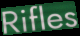
Rifles